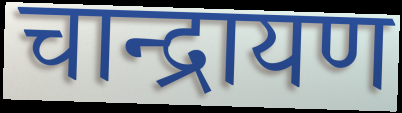
चान्द्रायण